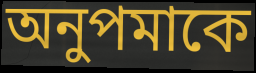
অনুপমাকে